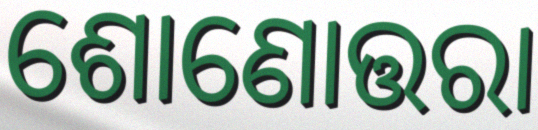
ଶୋଣୋତ୍ତରା